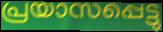
പ്രയാസപ്പെട്ടു